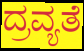
ದ್ರವ್ಯತೆ